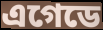
এগেডে